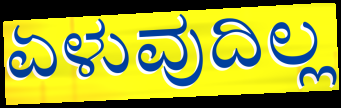
ಏಳುವುದಿಲ್ಲ